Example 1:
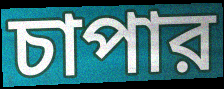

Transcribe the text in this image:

চাপার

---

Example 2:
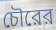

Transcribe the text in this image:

চৌরের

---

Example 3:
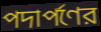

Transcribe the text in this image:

পদার্পণের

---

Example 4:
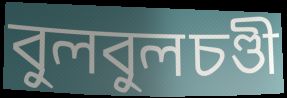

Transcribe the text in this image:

বুলবুলচণ্ডী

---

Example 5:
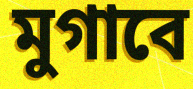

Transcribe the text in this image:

মুগাবে